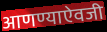
आणण्याऐवजी